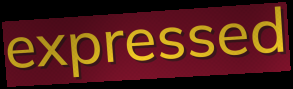
expressed